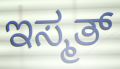
ಇಸ್ಮತ್